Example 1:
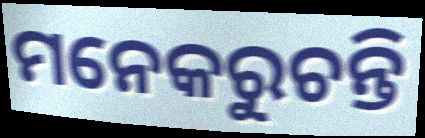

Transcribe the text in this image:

ମନେକରୁଚନ୍ତି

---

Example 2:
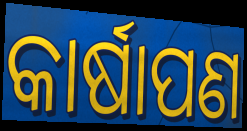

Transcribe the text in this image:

କାର୍ଷାପଣ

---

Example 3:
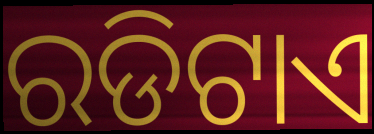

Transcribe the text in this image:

ରଡିଟାଏ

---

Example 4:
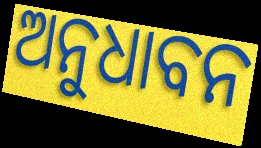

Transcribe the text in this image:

ଅନୁଧାବନ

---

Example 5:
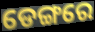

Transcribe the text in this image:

ଡେଙ୍ଗରେ